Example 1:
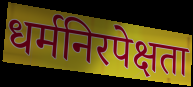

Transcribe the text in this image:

धर्मनिरपेक्षता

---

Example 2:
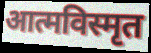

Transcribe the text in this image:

आत्मविस्मृत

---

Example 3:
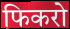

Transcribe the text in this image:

फिकरो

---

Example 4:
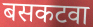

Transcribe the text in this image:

बसकटवा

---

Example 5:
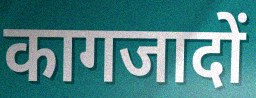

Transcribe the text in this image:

कागजादों